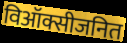
विऑक्सीजनित